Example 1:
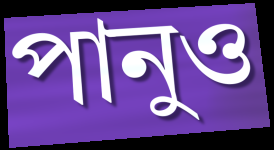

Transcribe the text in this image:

পানুও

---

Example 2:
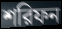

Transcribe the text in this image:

শরিফন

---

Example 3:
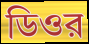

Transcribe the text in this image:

ডিওর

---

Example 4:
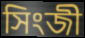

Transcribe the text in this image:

সিংজী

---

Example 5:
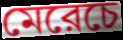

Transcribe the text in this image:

মেরেচে